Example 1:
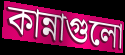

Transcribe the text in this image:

কান্নাগুলো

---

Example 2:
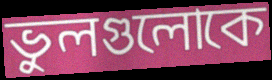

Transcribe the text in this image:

ভুলগুলোকে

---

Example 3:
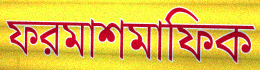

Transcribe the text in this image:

ফরমাশমাফিক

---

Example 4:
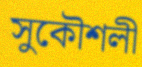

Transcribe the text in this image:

সুকৌশলী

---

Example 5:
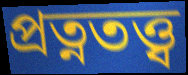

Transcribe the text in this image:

প্রত্নতত্ত্ব